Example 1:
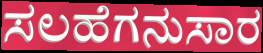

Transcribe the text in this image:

ಸಲಹೆಗನುಸಾರ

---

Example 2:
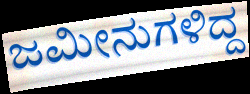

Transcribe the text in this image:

ಜಮೀನುಗಳಿದ್ದ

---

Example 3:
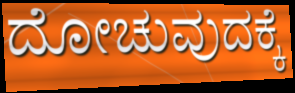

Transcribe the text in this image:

ದೋಚುವುದಕ್ಕೆ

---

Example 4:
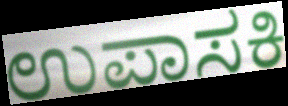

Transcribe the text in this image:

ಉಪಾಸಕಿ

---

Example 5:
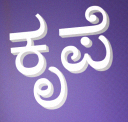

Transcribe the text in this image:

ಕೃಪೆ